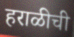
हराळीची